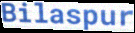
Bilaspur